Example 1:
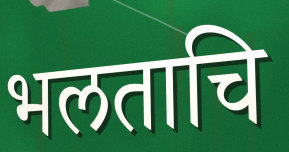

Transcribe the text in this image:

भलताचि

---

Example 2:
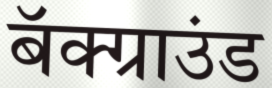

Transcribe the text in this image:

बॅक्ग्राउंड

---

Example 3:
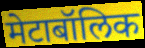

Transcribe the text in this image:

मेटाबॉलिक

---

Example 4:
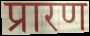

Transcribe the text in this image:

प्रारण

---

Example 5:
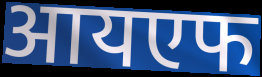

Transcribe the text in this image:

आयएफ